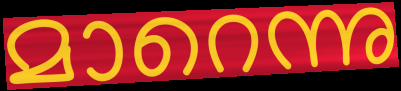
മാറെന്നു